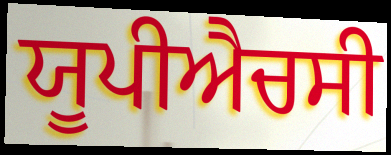
ਯੂਪੀਐਚਸੀ